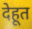
देहूत